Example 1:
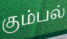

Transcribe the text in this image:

கும்பல்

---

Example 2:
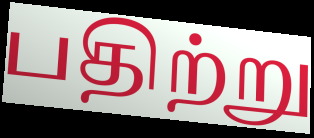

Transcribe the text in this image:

பதிற்று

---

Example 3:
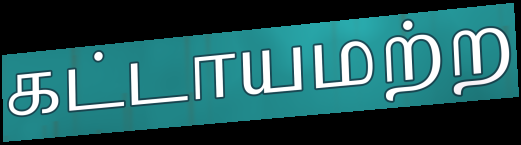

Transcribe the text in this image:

கட்டாயமற்ற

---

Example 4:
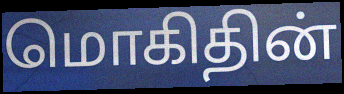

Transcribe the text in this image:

மொகிதின்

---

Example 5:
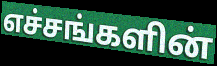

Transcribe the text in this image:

எச்சங்களின்